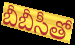
బీబీసీతో